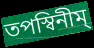
তপস্বিনীম্